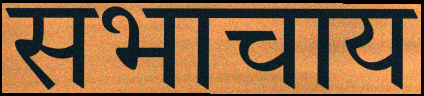
सभाचाय